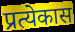
प्रत्येकास